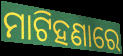
ମାଟିହଣାରେ